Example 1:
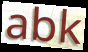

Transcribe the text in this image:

abk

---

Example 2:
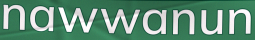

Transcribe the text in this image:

nawwanun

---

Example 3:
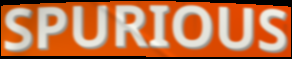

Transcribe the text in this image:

SPURIOUS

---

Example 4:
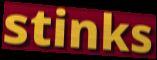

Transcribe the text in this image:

stinks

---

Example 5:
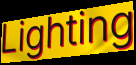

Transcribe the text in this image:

Lighting